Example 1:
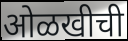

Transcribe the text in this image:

ओळखीची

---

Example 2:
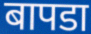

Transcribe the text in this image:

बापडा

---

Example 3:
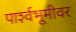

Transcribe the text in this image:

पार्श्‍वभूमीवर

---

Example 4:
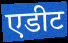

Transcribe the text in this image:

एडीट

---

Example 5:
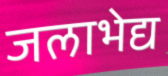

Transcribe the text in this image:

जलाभेद्य